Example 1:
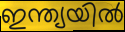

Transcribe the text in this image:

ഇന്ത്യയിൽ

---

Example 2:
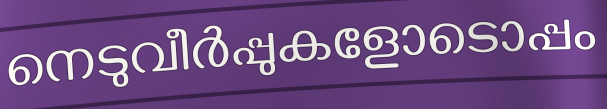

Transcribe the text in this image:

നെടുവീർപ്പുകളോടൊപ്പം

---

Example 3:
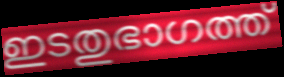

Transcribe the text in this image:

ഇടതുഭാഗത്ത്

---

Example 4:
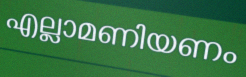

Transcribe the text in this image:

എല്ലാമണിയണം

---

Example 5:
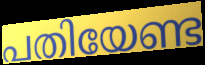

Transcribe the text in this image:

പതിയേണ്ട